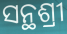
ସନ୍ଥଶ୍ରୀ